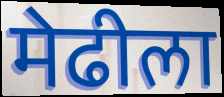
मेढीला